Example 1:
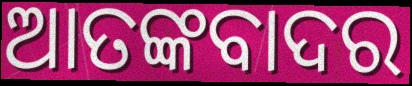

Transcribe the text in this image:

ଆତଙ୍କବାଦର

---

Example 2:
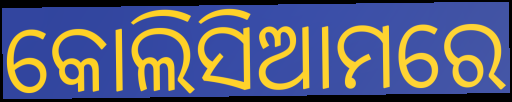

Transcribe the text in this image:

କୋଲିସିଆମରେ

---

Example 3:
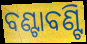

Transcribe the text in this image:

ବଣ୍ଟାବଣ୍ଟି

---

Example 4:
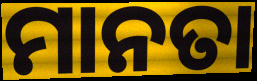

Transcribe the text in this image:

ମାନତା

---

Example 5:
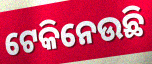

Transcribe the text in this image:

ଟେକିନେଉଛି